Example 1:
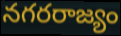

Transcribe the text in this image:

నగరరాజ్యం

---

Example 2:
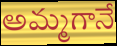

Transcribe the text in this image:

అమ్మగానే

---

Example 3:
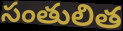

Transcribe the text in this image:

సంతులిత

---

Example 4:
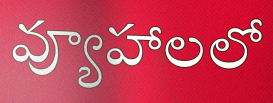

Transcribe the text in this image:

వ్యూహాలలో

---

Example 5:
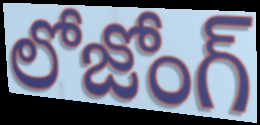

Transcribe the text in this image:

లోజోంగ్